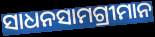
ସାଧନସାମଗ୍ରୀମାନ